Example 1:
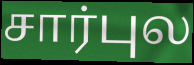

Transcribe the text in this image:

சார்புல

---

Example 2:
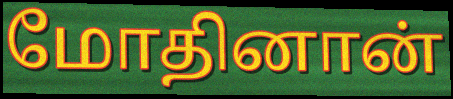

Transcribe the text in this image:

மோதினான்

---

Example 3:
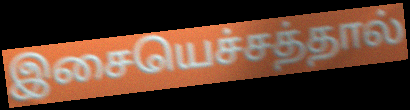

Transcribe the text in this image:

இசையெச்சத்தால்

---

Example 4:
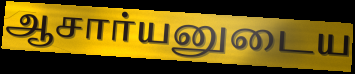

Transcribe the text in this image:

ஆசார்யனுடைய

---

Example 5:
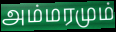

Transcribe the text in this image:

அம்மரமும்